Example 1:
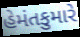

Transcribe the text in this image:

હેમંતકુમારે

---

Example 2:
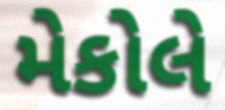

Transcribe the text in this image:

મેકોલે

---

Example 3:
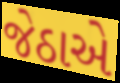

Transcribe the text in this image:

જેઠાએ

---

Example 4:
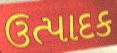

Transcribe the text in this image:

ઉત્પાદક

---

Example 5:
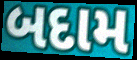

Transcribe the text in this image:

બદામ